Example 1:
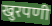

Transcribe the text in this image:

खुरपणी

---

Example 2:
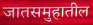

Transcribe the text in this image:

जातसमुहातील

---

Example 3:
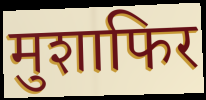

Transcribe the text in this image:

मुशाफिर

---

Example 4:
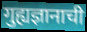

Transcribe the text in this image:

गुह्यज्ञानाची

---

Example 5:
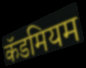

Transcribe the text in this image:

कॅडमियम